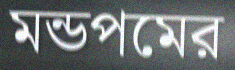
মন্ডপমের